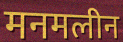
मनमलीन